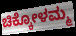
ಚಿಕ್ಕೋಳಮ್ಮ